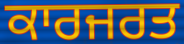
ਕਾਰਜਰਤ